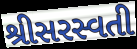
શ્રીસરસ્વતી